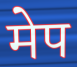
मेप